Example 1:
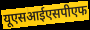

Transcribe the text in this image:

यूएसआईएसपीएफ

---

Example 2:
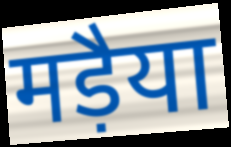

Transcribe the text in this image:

मड़ैया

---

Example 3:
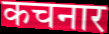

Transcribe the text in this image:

कचनार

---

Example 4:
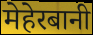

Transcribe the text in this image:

मेहेरबानी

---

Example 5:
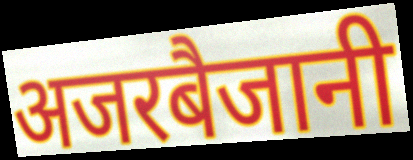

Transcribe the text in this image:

अजरबैजानी